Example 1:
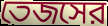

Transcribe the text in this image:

তেজসের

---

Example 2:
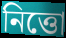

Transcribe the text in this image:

নিত্তো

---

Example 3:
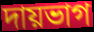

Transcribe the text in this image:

দায়ভাগ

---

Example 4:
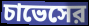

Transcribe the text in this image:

চাভেসের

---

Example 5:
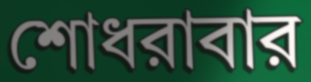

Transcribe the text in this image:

শোধরাবার